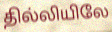
தில்லியிலே